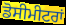
ਡੋਸੀਮੀਟਰਾਂ